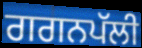
ਗਗਨਪੱਲੀ